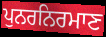
ਪੁਨਰਨਿਰਮਾਣ